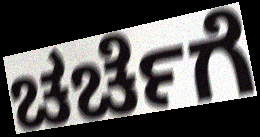
ಚರ್ಚೆಗೆ